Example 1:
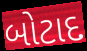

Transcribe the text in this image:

બોટાદ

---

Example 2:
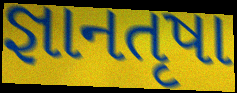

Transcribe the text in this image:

જ્ઞાનતૃષા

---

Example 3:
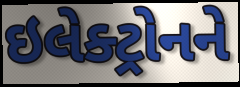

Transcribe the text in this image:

ઇલેક્ટ્રોનને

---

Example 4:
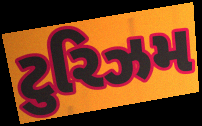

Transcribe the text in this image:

ટુરિઝમ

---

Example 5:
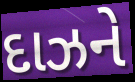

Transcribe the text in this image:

દાઝને